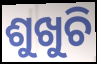
ଶୁଖୁଚି